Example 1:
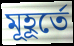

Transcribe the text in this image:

মূহূর্তে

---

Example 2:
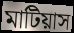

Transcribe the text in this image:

মাটিয়াস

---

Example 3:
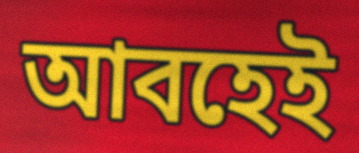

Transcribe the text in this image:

আবহেই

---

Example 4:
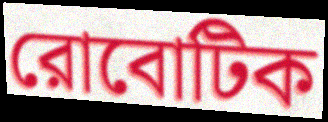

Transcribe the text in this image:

রোবোটিক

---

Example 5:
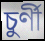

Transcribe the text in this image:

চুর্ণী